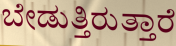
ಬೇಡುತ್ತಿರುತ್ತಾರೆ